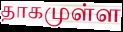
தாகமுள்ள